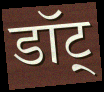
डॉट्